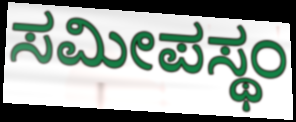
ಸಮೀಪಸ್ಥಂ